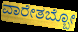
ವಾರೇತಬ್ಬೋ